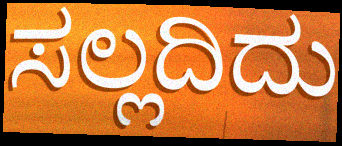
ಸಲ್ಲದಿದು